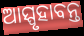
ଆସ୍ପୃହାବନ୍ତ